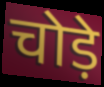
चोड़े